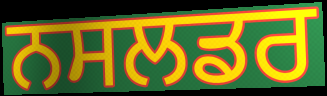
ਨਸਲਡਰ